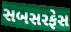
સબસરફેસ